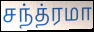
சந்த்ரமா